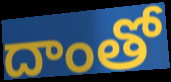
దాంతో